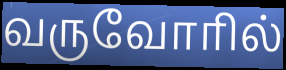
வருவோரில்